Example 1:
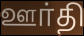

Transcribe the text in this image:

ஊர்தி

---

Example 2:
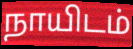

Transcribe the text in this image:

நாயிடம்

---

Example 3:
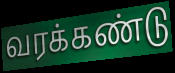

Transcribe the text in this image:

வரக்கண்டு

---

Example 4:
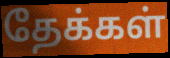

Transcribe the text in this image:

தேக்கள்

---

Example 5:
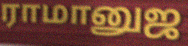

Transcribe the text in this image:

ராமானுஜ